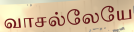
வாசல்லேயே